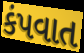
કંપવાત